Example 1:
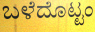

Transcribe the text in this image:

ಬಳೆದೊಟ್ಟಂ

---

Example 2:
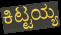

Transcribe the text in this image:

ಕಿಟ್ಟಯ್ಯ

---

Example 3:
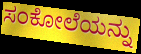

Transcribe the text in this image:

ಸಂಕೋಲೆಯನ್ನು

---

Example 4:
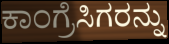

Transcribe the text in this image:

ಕಾಂಗ್ರೆಸಿಗರನ್ನು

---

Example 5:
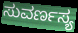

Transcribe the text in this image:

ಸುವರ್ಣಸ್ಯ